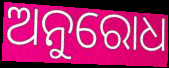
ଅନୁରୋଧ